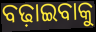
ବଢ଼ାଇବାକୁ